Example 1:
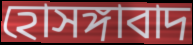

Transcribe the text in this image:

হোসঙ্গাবাদ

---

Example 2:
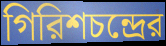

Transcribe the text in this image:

গিরিশচন্দ্রের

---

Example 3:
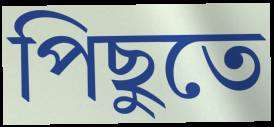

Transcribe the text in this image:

পিছুতে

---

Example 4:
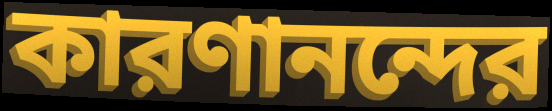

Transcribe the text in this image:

কারণানন্দের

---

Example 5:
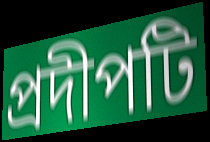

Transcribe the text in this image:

প্রদীপটি